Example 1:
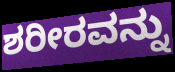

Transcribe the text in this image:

ಶರೀರವನ್ನು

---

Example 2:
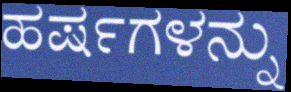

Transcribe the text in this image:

ಹರ್ಷಗಳನ್ನು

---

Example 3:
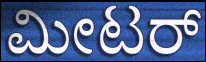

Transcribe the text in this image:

ಮೀಟರ್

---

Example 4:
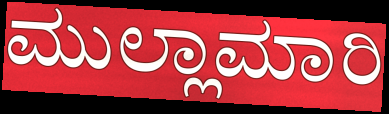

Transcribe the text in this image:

ಮುಲ್ಲಾಮಾರಿ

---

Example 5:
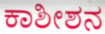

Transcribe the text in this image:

ಕಾಶೀಶನ